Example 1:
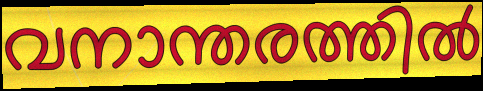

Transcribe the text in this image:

വനാന്തരത്തിൽ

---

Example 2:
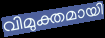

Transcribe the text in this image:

വിമുക്തമായി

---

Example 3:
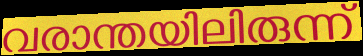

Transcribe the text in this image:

വരാന്തയിലിരുന്ന്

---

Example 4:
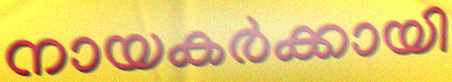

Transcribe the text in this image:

നായകർക്കായി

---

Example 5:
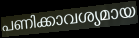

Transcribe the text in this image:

പണിക്കാവശ്യമായ